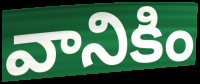
వానికిం